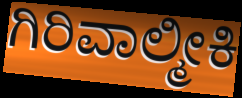
ಗಿರಿವಾಲ್ಮೀಕಿ